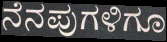
ನೆನಪುಗಳಿಗೂ